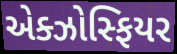
એક્ઝોસ્ફિયર